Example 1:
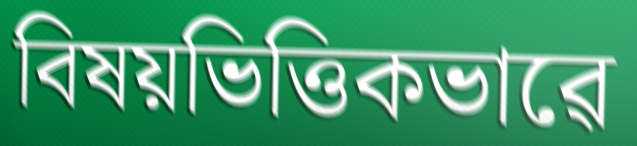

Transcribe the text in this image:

বিষয়ভিত্তিকভাৱে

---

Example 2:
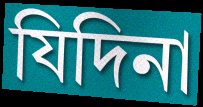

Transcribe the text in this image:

যিদিনা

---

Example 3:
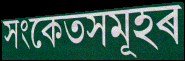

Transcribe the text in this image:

সংকেতসমূহৰ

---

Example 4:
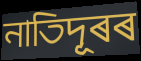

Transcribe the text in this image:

নাতিদূৰৰ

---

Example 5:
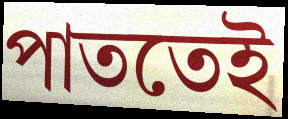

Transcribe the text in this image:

পাততেই